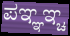
ಪಞ್ಞಞ್ಚ